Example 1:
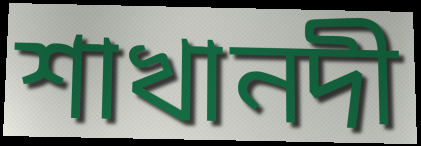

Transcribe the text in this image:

শাখানদী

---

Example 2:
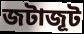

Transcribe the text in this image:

জটাজূট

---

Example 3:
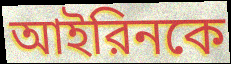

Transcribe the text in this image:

আইরিনকে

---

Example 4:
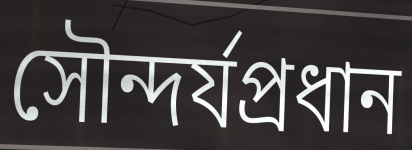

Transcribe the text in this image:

সৌন্দর্যপ্রধান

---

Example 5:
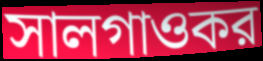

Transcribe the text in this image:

সালগাওকর